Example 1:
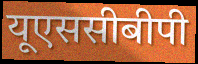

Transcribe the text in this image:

यूएससीबीपी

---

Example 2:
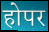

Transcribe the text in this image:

होपर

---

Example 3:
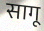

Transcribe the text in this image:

सागू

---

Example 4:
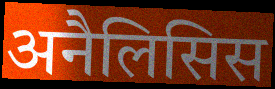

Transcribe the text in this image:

अनैलिसिस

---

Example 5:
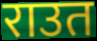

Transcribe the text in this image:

राउत